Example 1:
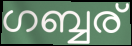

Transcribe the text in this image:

ഗബ്ബര്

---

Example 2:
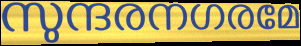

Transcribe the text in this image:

സുന്ദരനഗരമേ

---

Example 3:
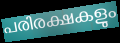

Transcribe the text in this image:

പരിരക്ഷകളും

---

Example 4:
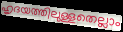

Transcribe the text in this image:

ഹൃദയത്തിലുള്ളതെല്ലാം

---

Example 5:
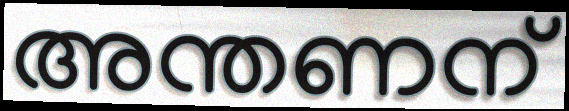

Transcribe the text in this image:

അന്തണന്